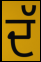
ਦੱ